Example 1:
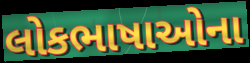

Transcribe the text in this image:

લોકભાષાઓના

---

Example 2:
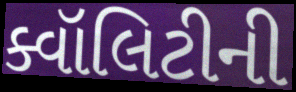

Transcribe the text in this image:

ક્વૉલિટીની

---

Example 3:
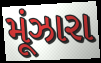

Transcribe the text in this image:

મૂંઝારા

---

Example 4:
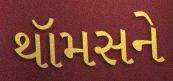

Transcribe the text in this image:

થૉમસને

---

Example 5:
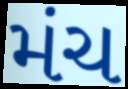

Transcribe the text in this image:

મંચ